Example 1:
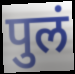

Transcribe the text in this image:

पुलं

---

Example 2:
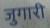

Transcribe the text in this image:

जुगारी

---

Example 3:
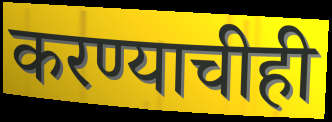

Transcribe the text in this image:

करण्याचीही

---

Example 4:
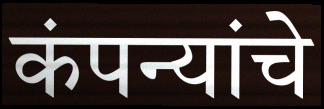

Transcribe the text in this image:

कंपन्यांचे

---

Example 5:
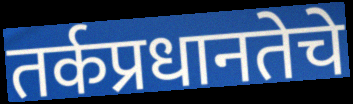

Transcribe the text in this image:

तर्कप्रधानतेचे